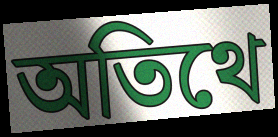
অতিথে